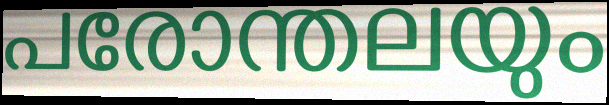
പരോന്തലയും